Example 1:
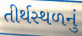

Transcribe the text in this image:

તીર્થસ્થળનું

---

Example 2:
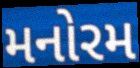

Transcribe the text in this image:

મનોરમ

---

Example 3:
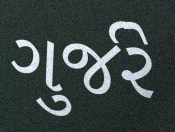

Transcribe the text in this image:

ગુર્જરે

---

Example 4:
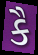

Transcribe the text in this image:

કૈ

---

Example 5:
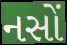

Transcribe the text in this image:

નસોં